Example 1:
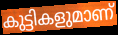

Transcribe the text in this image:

കുട്ടികളുമാണ്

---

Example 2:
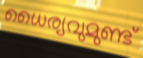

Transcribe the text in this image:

ധൈര്യവുമുണ്ട്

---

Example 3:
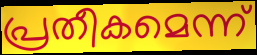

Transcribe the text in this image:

പ്രതീകമെന്ന്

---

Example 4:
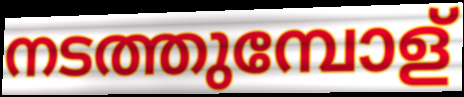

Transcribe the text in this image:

നടത്തുമ്പോള്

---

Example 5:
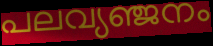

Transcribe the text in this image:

പലവ്യഞ്ജനം